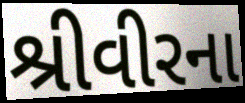
શ્રીવીરના